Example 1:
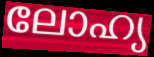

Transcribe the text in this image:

ലോഹ്യ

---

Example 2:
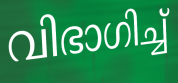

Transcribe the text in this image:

വിഭാഗിച്ച്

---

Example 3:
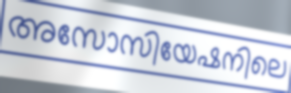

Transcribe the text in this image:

അസോസിയേഷനിലെ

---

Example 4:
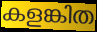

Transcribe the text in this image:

കളങ്കിത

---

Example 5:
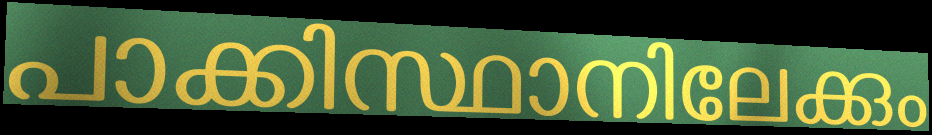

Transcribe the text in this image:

പാക്കിസ്ഥാനിലേക്കും